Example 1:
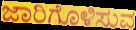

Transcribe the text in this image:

ಜಾರಿಗೊಳಿಸುವ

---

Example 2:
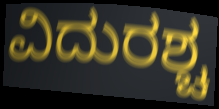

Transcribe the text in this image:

ವಿದುರಶ್ಚ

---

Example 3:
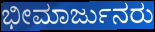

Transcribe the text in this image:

ಭೀಮಾರ್ಜುನರು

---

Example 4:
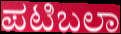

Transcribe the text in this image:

ಪಟಿಬಲಾ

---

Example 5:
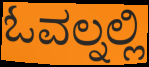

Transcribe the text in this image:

ಓವಲ್ನಲ್ಲಿ